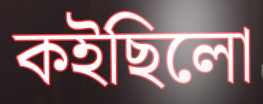
কইছিলো